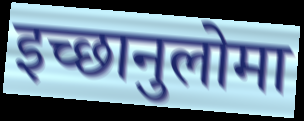
इच्छानुलोमा